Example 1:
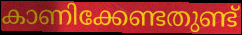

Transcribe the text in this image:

കാണിക്കേണ്ടതുണ്ട്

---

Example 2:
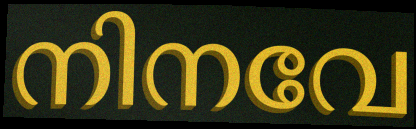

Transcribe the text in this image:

നിനവേ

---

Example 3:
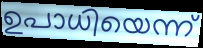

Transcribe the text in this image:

ഉപാധിയെന്ന്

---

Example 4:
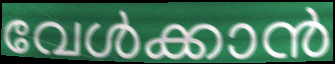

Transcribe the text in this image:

വേൾക്കാൻ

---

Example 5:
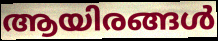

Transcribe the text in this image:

ആയിരങ്ങൾ